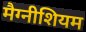
मैग्नीशियम